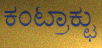
ಕಂಟ್ರಾಕ್ಟು